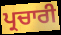
ਪ੍ਰਚਾਰੀ